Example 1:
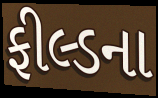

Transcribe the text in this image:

ફીલ્ડના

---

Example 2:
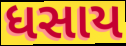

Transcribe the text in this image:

ધસાય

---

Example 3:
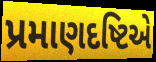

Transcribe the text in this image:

પ્રમાણદષ્ટિએ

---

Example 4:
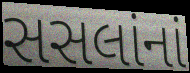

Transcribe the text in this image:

સસલાંનાં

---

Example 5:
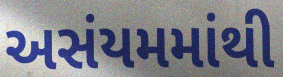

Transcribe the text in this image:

અસંયમમાંથી